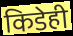
किडेही